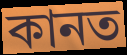
কানত